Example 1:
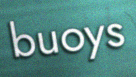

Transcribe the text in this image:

buoys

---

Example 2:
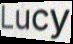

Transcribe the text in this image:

Lucy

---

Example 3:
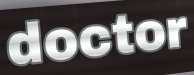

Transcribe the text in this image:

doctor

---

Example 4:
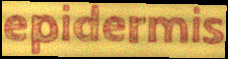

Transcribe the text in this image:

epidermis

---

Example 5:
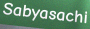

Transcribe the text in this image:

Sabyasachi